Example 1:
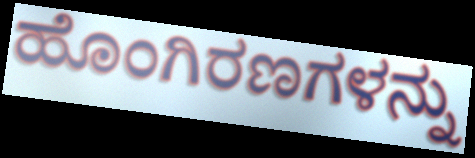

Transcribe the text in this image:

ಹೊಂಗಿರಣಗಳನ್ನು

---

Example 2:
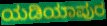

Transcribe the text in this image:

ಯಡಿಯಾಪುರ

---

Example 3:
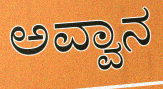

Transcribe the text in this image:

ಅವ್ವಾನ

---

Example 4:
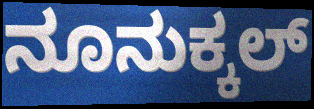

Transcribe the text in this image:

ನೂನುಕ್ಕಲ್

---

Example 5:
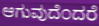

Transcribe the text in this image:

ಆಗುವುದೆಂದರೆ